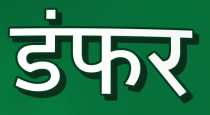
डंफर